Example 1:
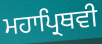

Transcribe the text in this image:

ਮਹਾਪ੍ਰਿਥਵੀ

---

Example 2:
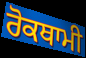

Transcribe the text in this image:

ਰੋਕਥਾਮੀ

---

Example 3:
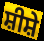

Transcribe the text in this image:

ਸ਼ੀਸ਼ੇ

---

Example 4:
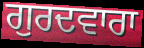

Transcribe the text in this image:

ਗੁਰਦਵਾਰਾ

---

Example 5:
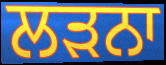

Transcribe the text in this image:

ਲੜਨਾ